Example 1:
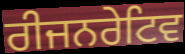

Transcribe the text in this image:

ਰੀਜਨਰੇਟਿਵ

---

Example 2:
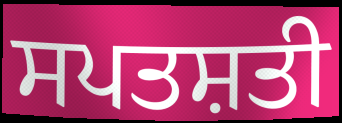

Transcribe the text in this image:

ਸਪਤਸ਼ਤੀ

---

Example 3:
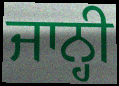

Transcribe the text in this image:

ਜਾਨ੍ਹੀ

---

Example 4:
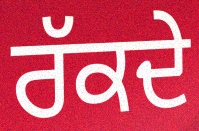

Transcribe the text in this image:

ਰੱਕਦੇ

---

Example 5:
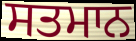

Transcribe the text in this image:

ਸਤਮਾਨ